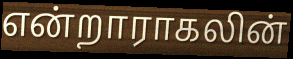
என்றாராகலின்